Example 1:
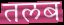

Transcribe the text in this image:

तलब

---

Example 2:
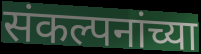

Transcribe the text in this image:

संकल्पनांच्या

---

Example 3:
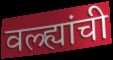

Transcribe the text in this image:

वल्ह्यांची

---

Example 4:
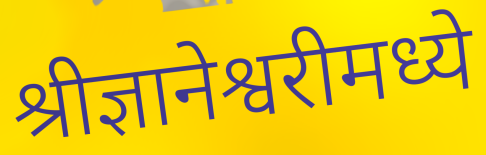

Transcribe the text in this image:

श्रीज्ञानेश्वरीमध्ये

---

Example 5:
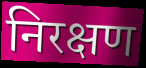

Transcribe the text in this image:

निरक्षण